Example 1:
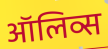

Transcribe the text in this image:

ऑलिव्स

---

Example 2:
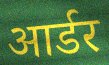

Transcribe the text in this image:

आर्डर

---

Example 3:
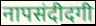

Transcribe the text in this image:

नापसंदीदगी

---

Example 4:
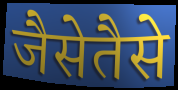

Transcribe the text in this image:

जैसेतैसे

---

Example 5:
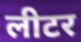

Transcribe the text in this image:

लीटर